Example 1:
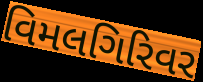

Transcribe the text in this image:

વિમલગિરિવર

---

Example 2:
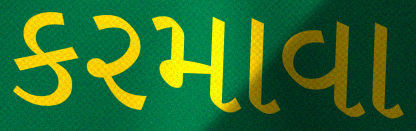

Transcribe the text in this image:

કરમાવા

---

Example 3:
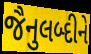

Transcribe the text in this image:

જૈનુલબ્દીને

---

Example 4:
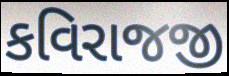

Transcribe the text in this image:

કવિરાજજી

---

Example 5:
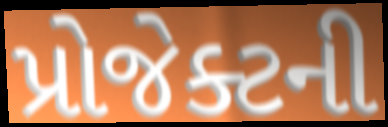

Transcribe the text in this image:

પ્રોજેક્ટની